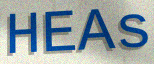
HEAs